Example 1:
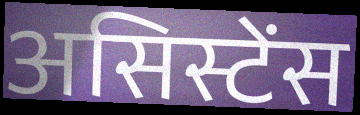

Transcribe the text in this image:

असिस्टेंस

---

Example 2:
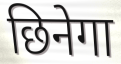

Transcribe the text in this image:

छिनेगा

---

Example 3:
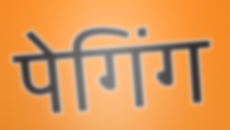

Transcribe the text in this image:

पेगिंग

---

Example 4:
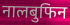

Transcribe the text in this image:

नालबुफिन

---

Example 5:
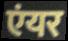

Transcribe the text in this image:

एंयर